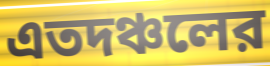
এতদঞ্চলের